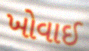
ખોવાઈ